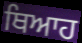
ਥਿਆਹ